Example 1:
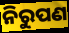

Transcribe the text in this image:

ନିରୁପଣ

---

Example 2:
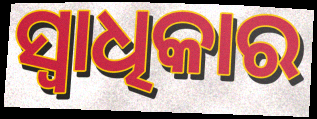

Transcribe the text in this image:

ସ୍ଵାଧିକାର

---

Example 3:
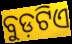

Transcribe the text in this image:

ବୁଡ଼ଟିଏ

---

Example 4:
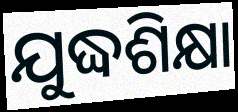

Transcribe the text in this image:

ଯୁଦ୍ଧଶିକ୍ଷା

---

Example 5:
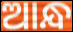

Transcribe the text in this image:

ଆନ୍ଧ